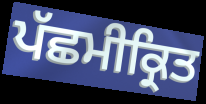
ਪੱਛਮੀਕ੍ਰਿਤ